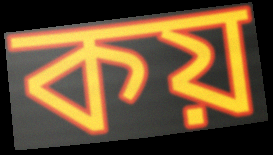
কয়